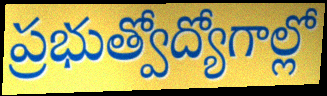
ప్రభుత్వోద్యోగాల్లో